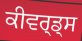
ਕੀਵਰ੍ਡ੍ਸ